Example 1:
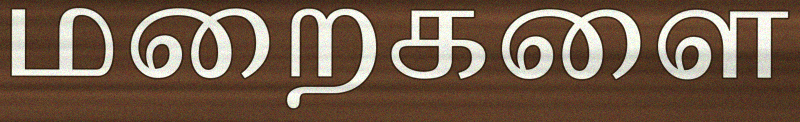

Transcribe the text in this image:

மறைகளை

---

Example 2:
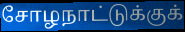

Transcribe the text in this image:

சோழநாட்டுக்குக்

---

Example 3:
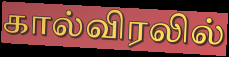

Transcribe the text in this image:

கால்விரலில்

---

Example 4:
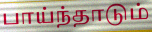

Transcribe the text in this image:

பாய்ந்தாடும்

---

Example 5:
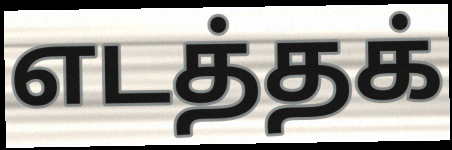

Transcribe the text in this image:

எடத்தக்